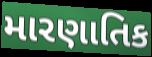
મારણાતિક